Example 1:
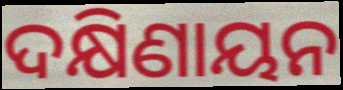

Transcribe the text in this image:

ଦକ୍ଷିଣାୟନ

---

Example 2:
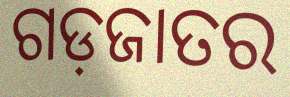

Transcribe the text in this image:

ଗଡ଼ଜାତର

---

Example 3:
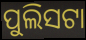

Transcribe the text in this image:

ପୁଲିସଟା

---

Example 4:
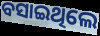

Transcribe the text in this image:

ବସାଇଥିଲେ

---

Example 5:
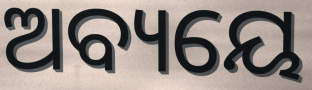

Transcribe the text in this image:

ଅବ୍ୟୟେ